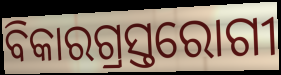
ବିକାରଗ୍ରସ୍ତରୋଗୀ